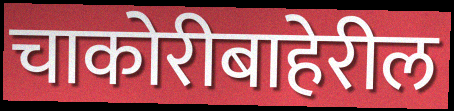
चाकोरीबाहेरील